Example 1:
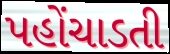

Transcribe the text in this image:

પહોંચાડતી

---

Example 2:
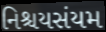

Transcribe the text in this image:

નિશ્ચયસંયમ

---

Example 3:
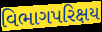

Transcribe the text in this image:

વિભાગપરિક્ષય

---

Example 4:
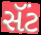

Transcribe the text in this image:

સૅંટ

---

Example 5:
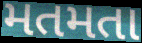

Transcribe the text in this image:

મતમતા